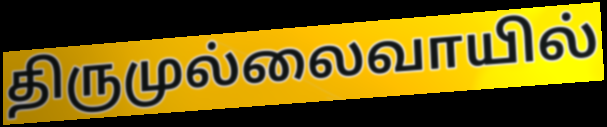
திருமுல்லைவாயில்